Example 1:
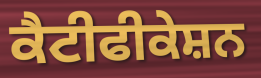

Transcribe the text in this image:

ਕੈਟੀਫੀਕੇਸ਼ਨ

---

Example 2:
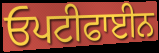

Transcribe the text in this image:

ਓਪਟੀਫਾਈਨ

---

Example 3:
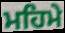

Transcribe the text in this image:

ਮਹਿਮੇ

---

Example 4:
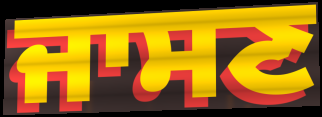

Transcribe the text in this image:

ਜਾਸਣ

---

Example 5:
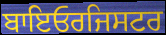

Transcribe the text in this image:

ਬਾਇਓਰਜਿਸਟਰ